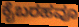
ಕೈಬರಹವೂ